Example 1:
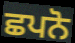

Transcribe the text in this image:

ਛਪਨੋ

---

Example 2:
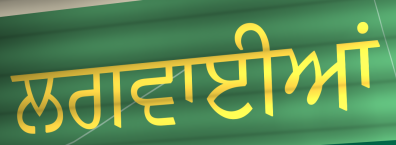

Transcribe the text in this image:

ਲਗਵਾਈਆਂ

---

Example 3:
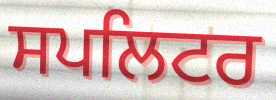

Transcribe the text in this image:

ਸਪਲਿਟਰ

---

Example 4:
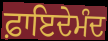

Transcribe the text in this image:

ਫ਼ਾਇਦੇਮੰਦ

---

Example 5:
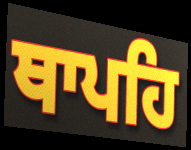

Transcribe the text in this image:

ਥਾਪਹਿ